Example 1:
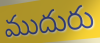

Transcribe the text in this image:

ముదురు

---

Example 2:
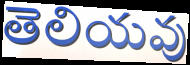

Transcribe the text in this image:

తెలియవు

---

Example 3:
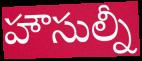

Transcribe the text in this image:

హౌసుల్నీ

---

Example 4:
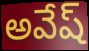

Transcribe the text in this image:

అవేష్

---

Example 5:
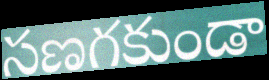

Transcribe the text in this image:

సణగకుండా